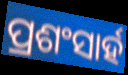
ପ୍ରଶଂସାର୍ହ